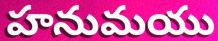
హనుమయు